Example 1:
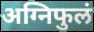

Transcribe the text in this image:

अग्निफुलं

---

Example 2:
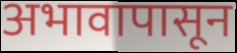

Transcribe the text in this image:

अभावापासून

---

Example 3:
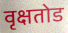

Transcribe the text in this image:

वृक्षतोड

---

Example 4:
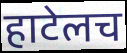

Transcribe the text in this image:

हाटेलच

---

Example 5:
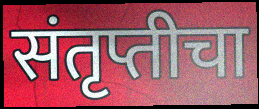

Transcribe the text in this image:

संतृप्तीचा